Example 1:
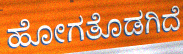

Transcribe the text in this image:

ಹೋಗತೊಡಗಿದೆ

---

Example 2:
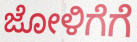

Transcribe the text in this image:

ಜೋಳಿಗೆಗೆ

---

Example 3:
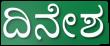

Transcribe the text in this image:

ದಿನೇಶ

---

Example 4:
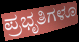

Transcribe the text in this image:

ಪ್ರಭೃತಿಗಳೂ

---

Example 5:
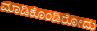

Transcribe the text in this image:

ಮಾಡಿಕೊಂಡಿರೋದು